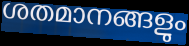
ശതമാനങ്ങളും